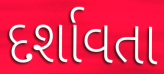
દર્શાવતા